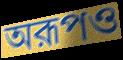
অরূপও